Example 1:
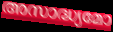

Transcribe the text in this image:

അസാദ്ധ്യമോ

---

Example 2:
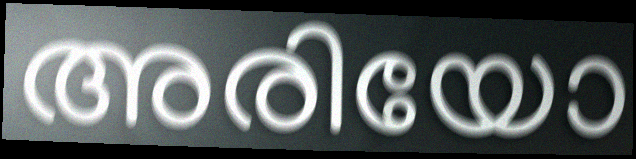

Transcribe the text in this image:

അരിയോ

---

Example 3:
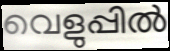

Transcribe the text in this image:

വെളുപ്പിൽ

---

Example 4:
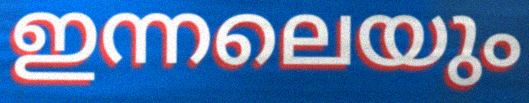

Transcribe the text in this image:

ഇന്നലെയും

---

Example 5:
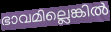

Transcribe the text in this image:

ഭാവമില്ലെങ്കിൽ